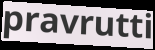
pravrutti